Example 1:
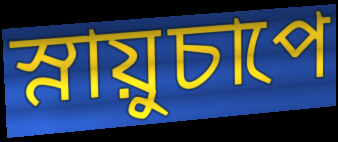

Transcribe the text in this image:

স্নায়ুচাপে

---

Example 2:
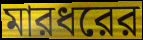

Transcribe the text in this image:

মারধরের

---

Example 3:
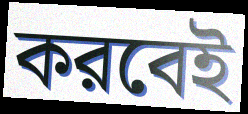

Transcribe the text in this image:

করবেই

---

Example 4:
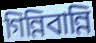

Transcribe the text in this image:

গিন্নিবান্নি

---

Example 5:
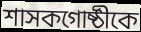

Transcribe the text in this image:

শাসকগোষ্ঠীকে